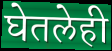
घेतलेही